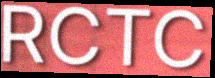
RCTC